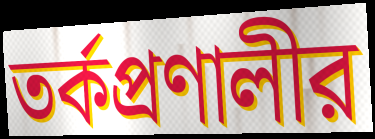
তর্কপ্রণালীর